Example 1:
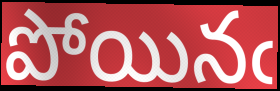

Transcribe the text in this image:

పోయినఁ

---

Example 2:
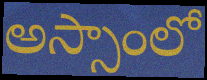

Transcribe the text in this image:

అస్సాంలో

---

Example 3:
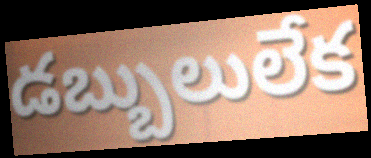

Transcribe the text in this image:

డబ్బులులేక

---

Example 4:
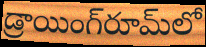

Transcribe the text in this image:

డ్రాయింగ్‌రూమ్‌లో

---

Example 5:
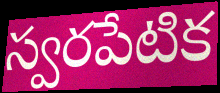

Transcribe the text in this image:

స్వరపేటిక